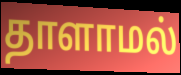
தாளாமல்